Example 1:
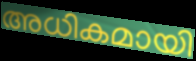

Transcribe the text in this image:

അധികമായി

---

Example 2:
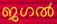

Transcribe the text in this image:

ജഗൽ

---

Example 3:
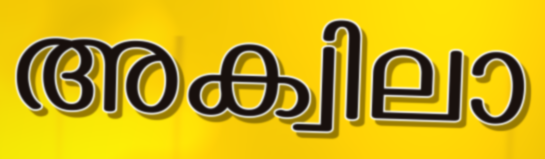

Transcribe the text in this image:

അക്വിലാ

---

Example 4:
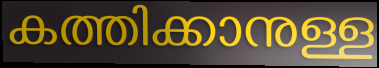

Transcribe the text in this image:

കത്തിക്കാനുള്ള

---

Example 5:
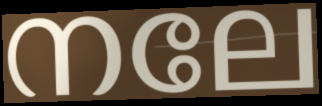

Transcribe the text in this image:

നലേ